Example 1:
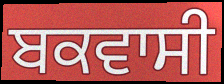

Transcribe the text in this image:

ਬਕਵਾਸੀ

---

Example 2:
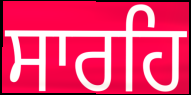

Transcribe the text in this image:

ਸਾਰਹਿ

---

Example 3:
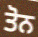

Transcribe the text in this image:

ਤੋਨ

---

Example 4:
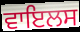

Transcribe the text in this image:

ਵਾਇਲਸ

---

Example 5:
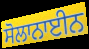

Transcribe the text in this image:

ਸੋਲਾਨਾਈਨ